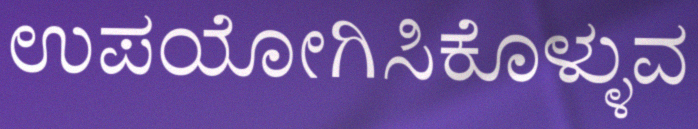
ಉಪಯೋಗಿಸಿಕೊಳ್ಳುವ